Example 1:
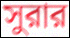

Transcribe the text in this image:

সুরার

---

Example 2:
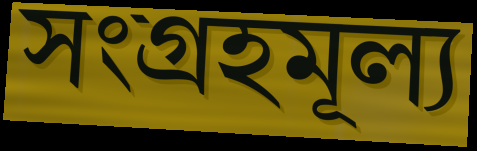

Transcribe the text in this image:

সংগ্রহমূল্য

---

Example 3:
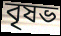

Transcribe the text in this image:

বৃষভ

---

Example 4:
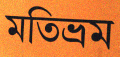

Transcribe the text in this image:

মতিভ্রম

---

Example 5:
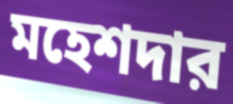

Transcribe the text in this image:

মহেশদার